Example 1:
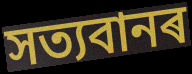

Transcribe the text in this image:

সত্যবানৰ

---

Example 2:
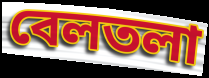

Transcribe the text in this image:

বেলতলা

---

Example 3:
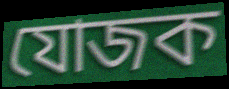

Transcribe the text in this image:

যোজক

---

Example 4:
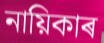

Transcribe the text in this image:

নায়িকাৰ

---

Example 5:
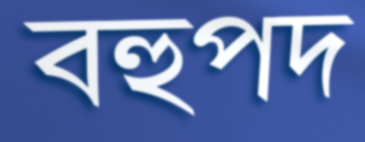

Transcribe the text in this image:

বহুপদ